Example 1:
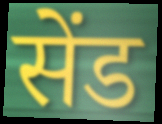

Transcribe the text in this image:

सेंड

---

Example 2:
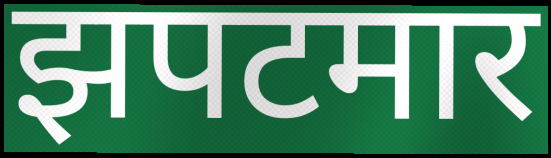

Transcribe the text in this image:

झपटमार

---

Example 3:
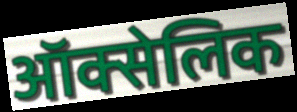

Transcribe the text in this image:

ऑक्सेलिक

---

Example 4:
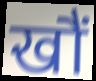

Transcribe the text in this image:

खौं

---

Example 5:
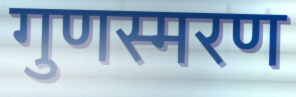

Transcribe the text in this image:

गुणस्मरण